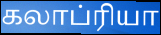
கலாப்ரியா